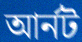
আর্নট